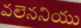
వలెననియు